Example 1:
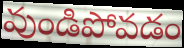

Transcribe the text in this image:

వుండిపోవడం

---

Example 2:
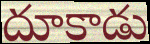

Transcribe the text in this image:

దూకాడు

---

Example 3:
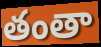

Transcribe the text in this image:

తంతా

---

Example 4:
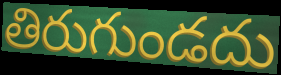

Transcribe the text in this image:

తిరుగుండదు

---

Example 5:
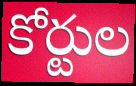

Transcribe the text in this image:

కోర్టుల